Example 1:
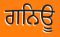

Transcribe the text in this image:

ਗਨਿਊ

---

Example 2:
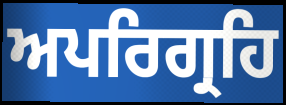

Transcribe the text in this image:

ਅਪਰਿਗ੍ਰਹਿ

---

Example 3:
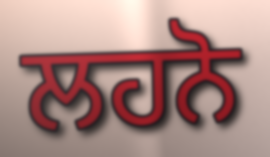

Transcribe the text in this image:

ਲਹਨੋ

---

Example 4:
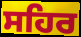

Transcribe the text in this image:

ਸਹਿਰ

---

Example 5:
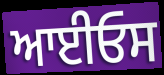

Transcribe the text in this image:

ਆਈਓਸ